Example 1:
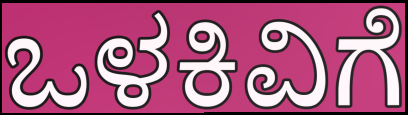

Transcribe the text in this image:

ಒಳಕಿವಿಗೆ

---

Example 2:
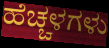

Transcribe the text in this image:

ಹೆಚ್ಚಳಗಳು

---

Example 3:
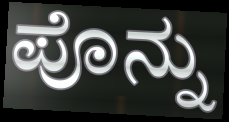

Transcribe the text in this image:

ಪೊನ್ನು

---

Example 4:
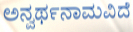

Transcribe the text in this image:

ಅನ್ವರ್ಥನಾಮವಿದೆ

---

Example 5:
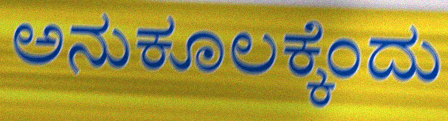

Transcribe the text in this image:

ಅನುಕೂಲಕ್ಕೆಂದು